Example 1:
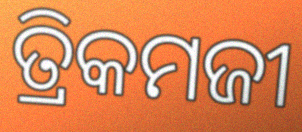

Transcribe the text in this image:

ତ୍ରିକମଜୀ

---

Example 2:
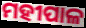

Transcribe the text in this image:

ମହୀପାଳ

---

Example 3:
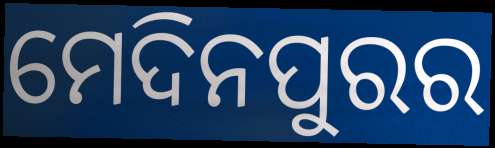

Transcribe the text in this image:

ମେଦିନପୁରର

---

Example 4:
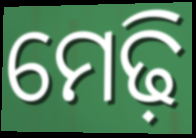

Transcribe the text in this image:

ମେଢ଼ି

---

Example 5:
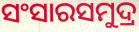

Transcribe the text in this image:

ସଂସାରସମୁଦ୍ର